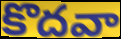
కొదవా